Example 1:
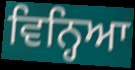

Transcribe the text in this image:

ਵਿਨ੍ਹਿਆ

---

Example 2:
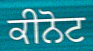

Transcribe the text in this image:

ਕੀਨੋਟ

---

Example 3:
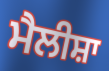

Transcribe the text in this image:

ਮੈਲੀਸ਼ਾ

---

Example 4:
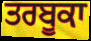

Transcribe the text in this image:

ਤਰਬੂਕਾ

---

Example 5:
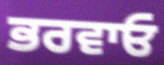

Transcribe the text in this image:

ਭਰਵਾਓ